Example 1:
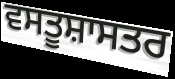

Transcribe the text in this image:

ਵਸਤੂਸ਼ਾਸਤਰ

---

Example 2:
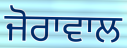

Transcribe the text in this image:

ਜੋਰਾਵਾਲ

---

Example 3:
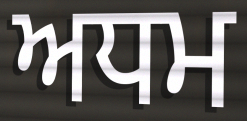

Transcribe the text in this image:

ਅਧਮ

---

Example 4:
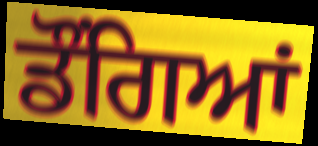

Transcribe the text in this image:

ਡੌਂਗਿਆਂ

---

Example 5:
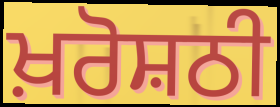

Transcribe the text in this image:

ਖ਼ਰੋਸ਼ਠੀ